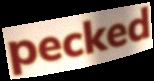
pecked